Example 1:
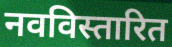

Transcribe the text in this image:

नवविस्तारित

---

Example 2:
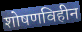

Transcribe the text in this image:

शोषणविहीन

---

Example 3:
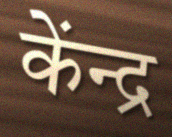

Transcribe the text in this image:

केंन्द्र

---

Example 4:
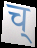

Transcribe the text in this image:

च्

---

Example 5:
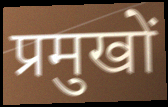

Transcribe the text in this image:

प्रमुखों